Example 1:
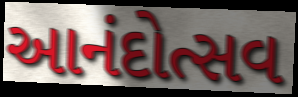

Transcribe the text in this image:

આનંદોત્સવ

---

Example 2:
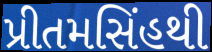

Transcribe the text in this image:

પ્રીતમસિંહથી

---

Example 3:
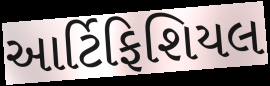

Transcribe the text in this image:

આર્ટિફિશિયલ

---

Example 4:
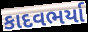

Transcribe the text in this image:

કાદવભર્યા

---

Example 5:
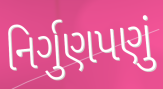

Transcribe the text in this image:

નિર્ગુણપણું